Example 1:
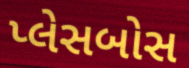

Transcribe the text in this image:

પ્લેસબોસ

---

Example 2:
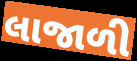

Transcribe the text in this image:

લાજાળી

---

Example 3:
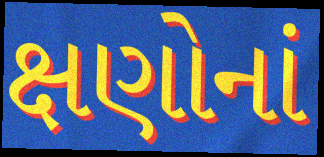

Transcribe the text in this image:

ક્ષણોનાં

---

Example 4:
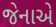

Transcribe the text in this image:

જેનાએ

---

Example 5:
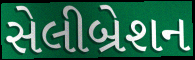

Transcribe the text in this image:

સેલીબ્રેશન